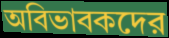
অবিভাবকদের